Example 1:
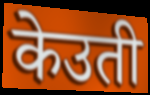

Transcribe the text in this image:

केउती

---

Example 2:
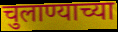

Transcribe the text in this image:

चुलाण्याच्या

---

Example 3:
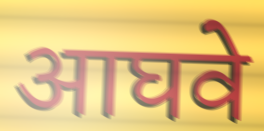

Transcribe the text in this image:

आघवे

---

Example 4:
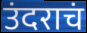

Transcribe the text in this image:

उंदराचं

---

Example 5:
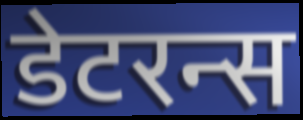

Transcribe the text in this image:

डेटरन्स